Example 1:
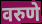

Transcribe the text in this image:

वरुणे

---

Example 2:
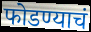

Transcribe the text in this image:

फोडण्याचं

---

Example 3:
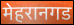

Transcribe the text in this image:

मेहरानगड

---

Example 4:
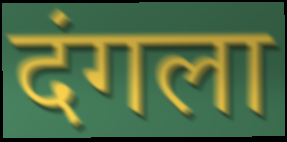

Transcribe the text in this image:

दंगला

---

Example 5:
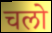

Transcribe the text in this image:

चलो